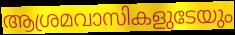
ആശ്രമവാസികളുടേയും